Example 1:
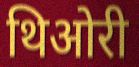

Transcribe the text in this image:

थिओरी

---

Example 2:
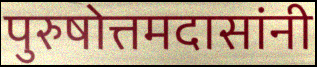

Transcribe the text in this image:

पुरुषोत्तमदासांनी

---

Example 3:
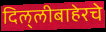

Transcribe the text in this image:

दिल्लीबाहेरचे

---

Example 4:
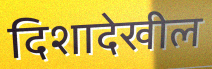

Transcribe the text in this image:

दिशादेखील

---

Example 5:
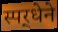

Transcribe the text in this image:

स्पर्धेने